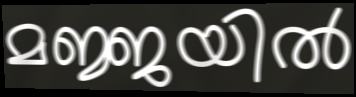
മജ്ജയിൽ